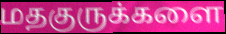
மதகுருக்களை